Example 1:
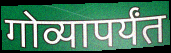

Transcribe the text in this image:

गोव्यापर्यंत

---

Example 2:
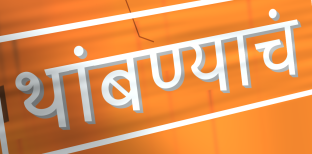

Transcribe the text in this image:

थांबण्याचं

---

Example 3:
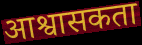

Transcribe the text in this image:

आश्वासकता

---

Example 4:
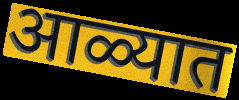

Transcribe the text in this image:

आळ्यात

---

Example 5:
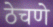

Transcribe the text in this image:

ठेचणे